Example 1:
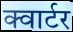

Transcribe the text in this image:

क्वार्टर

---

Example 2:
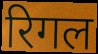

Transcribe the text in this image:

रिगल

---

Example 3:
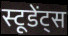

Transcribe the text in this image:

स्टूडेंट्स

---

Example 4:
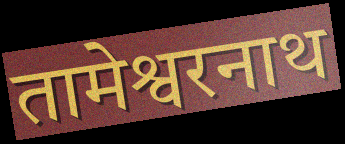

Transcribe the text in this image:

तामेश्वरनाथ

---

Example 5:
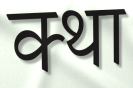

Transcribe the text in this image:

क्था